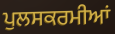
ਪੁਲਸਕਰਮੀਆਂ